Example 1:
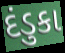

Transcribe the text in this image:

દંડુકા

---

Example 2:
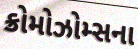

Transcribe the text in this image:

ક્રોમોઝોમ્સના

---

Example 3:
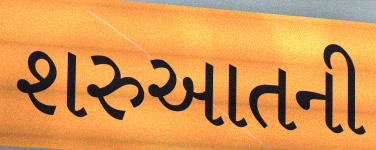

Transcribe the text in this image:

શરુઆતની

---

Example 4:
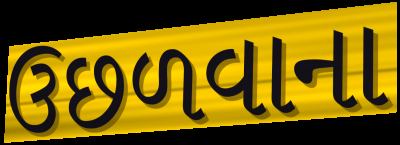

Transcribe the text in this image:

ઉછળવાના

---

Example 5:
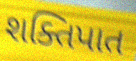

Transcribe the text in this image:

શક્તિપાત